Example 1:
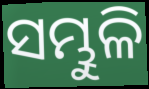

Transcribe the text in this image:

ସମ୍ଭୁଳି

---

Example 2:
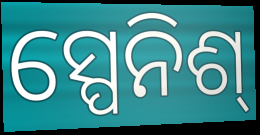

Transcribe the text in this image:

ସ୍ପେନିଶ୍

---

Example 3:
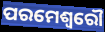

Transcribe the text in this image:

ପରମେଶ୍ଵରୌ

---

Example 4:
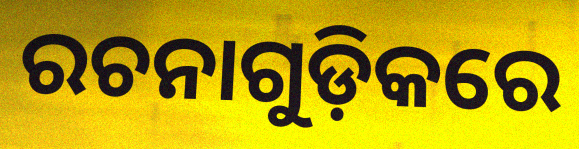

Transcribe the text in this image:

ରଚନାଗୁଡ଼ିକରେ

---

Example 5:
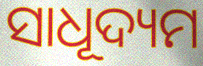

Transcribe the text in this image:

ସାଧୂଦ୍ୟମ